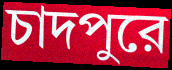
চাদপুরে